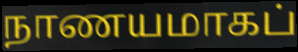
நாணயமாகப்